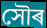
সৌৰ